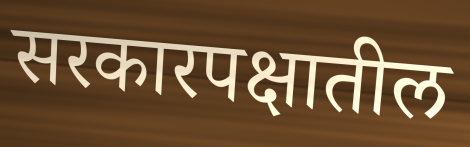
सरकारपक्षातील